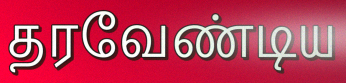
தரவேண்டிய